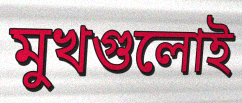
মুখগুলোই